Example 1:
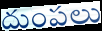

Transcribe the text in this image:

దుంపలు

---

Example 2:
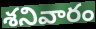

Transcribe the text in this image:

శనివారం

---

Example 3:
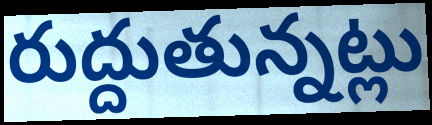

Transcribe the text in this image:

రుద్దుతున్నట్లు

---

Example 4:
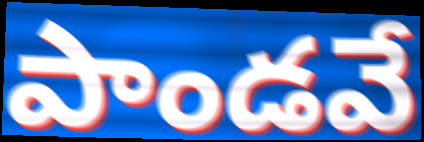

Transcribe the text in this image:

పాండవే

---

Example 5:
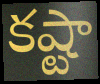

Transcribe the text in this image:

కష్టా